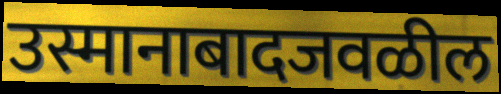
उस्मानाबादजवळील